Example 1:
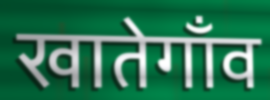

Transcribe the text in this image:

खातेगाँव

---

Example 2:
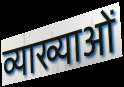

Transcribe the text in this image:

व्याख्याओं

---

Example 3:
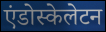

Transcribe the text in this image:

एंडोस्केलेटन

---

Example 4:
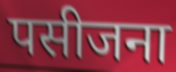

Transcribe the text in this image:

पसीजना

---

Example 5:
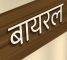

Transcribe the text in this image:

बायरल